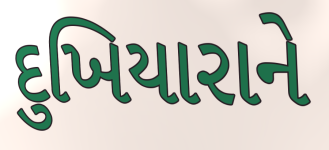
દુખિયારાને